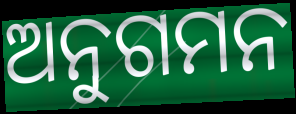
ଅନୁଗମନ